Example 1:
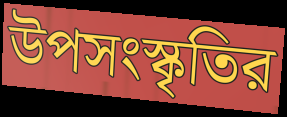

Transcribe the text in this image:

উপসংস্কৃতির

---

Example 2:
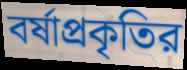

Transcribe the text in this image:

বর্ষাপ্রকৃতির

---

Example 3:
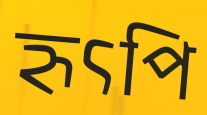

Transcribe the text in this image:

হৃৎপি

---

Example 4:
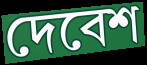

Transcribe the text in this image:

দেবেশ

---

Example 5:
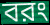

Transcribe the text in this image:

বরং